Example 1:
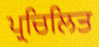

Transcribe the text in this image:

ਪ੍ਰਚਿਲਿਤ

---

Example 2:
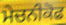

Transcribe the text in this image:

ਮੇਚਨੀਕੋਫ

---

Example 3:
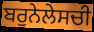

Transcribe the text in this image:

ਬਰੁਨੇਲੇਸਚੀ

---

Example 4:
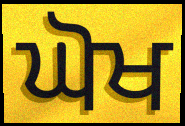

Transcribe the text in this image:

ਘੋਖ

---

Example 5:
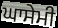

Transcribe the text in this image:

ਘਾਸੇਮੀ